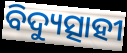
ବିଦ୍ୟୁତ୍ସାହୀ